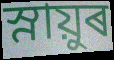
স্নায়ুৰ